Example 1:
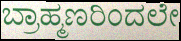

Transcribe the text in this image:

ಬ್ರಾಹ್ಮಣರಿಂದಲೇ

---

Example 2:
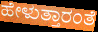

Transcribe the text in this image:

ಹೇಳುತ್ತಾರಂತೆ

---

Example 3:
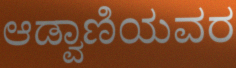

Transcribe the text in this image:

ಆಡ್ವಾಣಿಯವರ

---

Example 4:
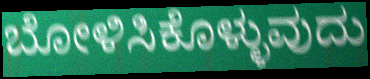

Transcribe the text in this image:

ಬೋಳಿಸಿಕೊಳ್ಳುವುದು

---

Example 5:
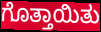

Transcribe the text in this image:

ಗೊತ್ತಾಯಿತು